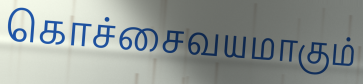
கொச்சைவயமாகும்